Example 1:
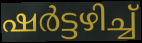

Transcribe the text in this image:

ഷർട്ടഴിച്ച്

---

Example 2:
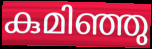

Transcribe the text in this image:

കുമിഞ്ഞു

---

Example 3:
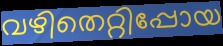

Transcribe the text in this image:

വഴിതെറ്റിപ്പോയ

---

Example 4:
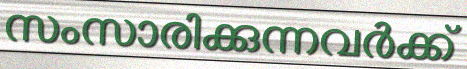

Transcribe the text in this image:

സംസാരിക്കുന്നവർക്ക്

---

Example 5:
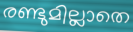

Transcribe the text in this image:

രണ്ടുമില്ലാതെ